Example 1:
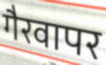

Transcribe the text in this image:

गैरवापर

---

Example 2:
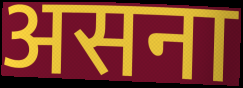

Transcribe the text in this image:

असना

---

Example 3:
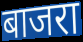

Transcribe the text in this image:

बाजरा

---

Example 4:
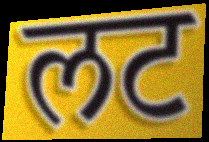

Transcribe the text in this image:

लट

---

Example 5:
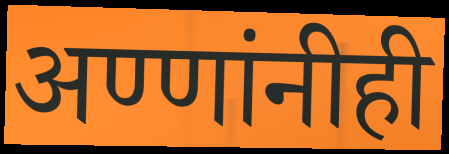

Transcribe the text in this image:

अण्णांनीही